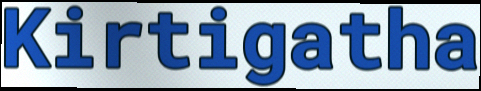
Kirtigatha